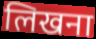
लिखना